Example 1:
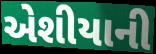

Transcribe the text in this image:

એશીયાની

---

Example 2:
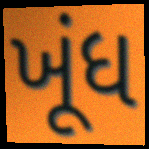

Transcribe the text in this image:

ખૂંધ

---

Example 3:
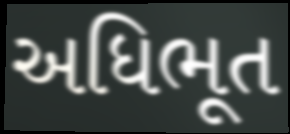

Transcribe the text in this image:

અધિભૂત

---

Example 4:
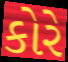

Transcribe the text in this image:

કોરે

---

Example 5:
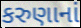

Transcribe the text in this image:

કરુણાનાં